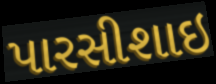
પારસીશાઇ